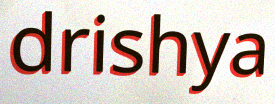
drishya